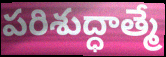
పరిశుద్ధాత్మే